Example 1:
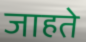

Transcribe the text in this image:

जाहते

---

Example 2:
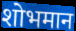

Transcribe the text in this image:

शोभमान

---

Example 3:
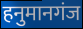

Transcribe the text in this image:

हनुमानगंज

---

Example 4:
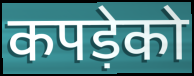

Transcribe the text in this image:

कपड़ेको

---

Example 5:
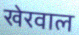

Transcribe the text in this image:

खेरवाल